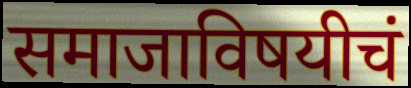
समाजाविषयीचं